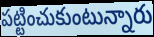
పట్టించుకుంటున్నారు